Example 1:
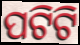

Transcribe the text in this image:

ପଟିଟି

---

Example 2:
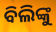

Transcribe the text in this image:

ବିଲିଙ୍କୁ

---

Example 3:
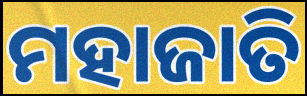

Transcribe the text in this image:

ମହାଜାତି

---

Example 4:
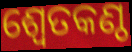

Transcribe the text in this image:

ଶ୍ୱେତକଣ୍ଠ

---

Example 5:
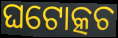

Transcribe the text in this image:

ଘଟୋତ୍କଚ